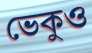
ভেকুও